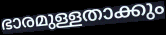
ഭാരമുള്ളതാക്കും